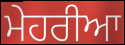
ਮੇਹਰੀਆ